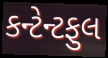
કન્ટેન્ટફુલ